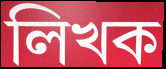
লিখক